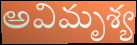
అవిమృశ్య